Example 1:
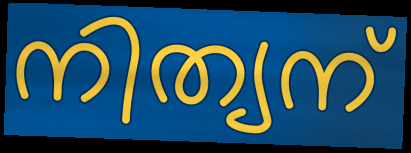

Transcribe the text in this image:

നിത്യന്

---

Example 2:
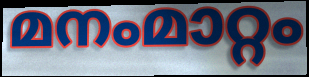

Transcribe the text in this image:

മനംമാറ്റം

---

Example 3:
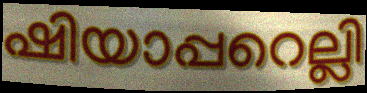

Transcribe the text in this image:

ഷിയാപ്പറെല്ലി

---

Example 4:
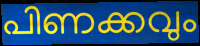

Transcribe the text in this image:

പിണക്കവും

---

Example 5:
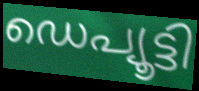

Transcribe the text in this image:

ഡെപ്യൂട്ടി